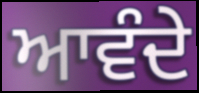
ਆਵੰਦੇ